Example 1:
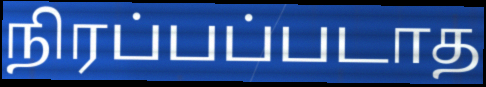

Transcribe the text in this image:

நிரப்பப்படாத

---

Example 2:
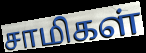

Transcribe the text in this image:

சாமிகள்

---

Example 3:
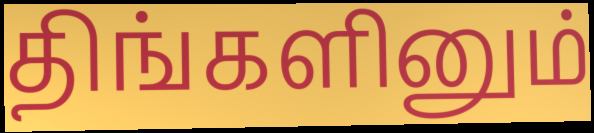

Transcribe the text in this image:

திங்களினும்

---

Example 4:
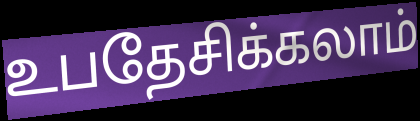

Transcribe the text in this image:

உபதேசிக்கலாம்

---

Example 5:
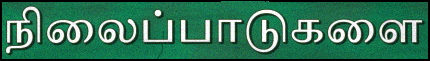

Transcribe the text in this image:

நிலைப்பாடுகளை